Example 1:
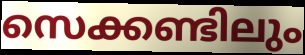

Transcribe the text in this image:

സെക്കണ്ടിലും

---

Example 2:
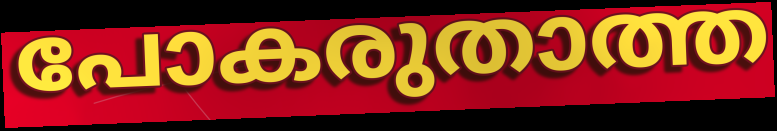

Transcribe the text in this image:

പോകരുതാത്ത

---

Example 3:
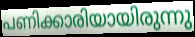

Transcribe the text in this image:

പണിക്കാരിയായിരുന്നു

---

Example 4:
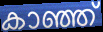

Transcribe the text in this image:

കാഞ്ഞ്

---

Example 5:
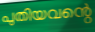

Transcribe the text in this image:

പുതിയവന്റെ